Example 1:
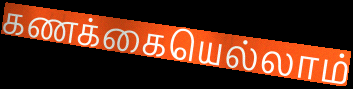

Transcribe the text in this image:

கணக்கையெல்லாம்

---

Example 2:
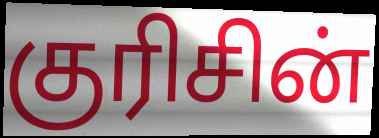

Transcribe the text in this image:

குரிசின்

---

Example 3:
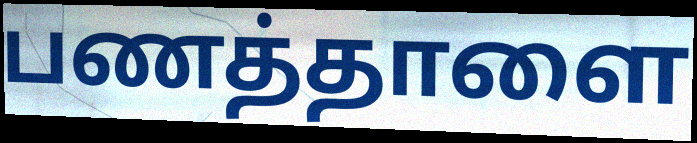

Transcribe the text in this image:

பணத்தாளை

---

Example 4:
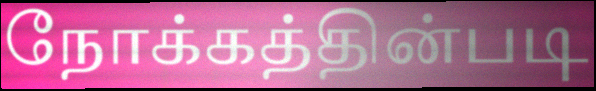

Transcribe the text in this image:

நோக்கத்தின்படி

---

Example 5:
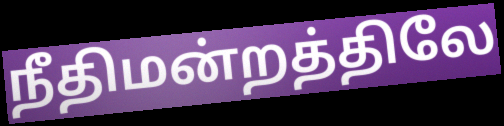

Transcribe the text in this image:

நீதிமன்றத்திலே